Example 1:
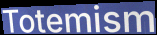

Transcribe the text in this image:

Totemism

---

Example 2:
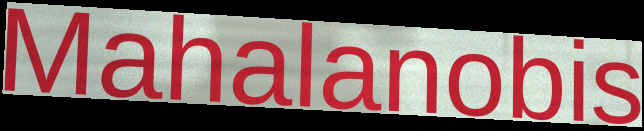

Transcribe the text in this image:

Mahalanobis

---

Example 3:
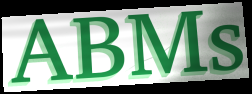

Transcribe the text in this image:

ABMs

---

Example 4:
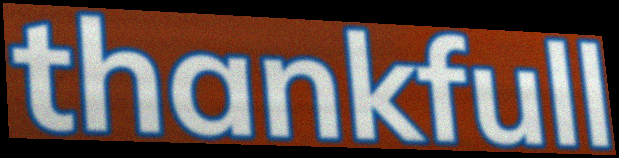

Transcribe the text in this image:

thankfull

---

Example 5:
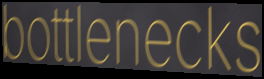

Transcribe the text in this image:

bottlenecks